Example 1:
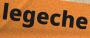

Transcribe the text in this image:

legeche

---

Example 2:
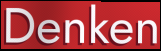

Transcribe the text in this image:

Denken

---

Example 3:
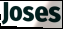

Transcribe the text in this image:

Joses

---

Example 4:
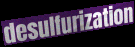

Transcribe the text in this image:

desulfurization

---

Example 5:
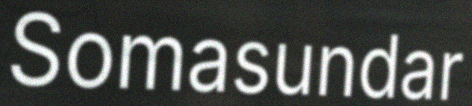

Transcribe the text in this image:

Somasundar